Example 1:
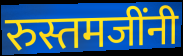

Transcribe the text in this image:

रुस्तमजींनी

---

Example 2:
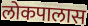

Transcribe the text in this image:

लोकपालास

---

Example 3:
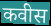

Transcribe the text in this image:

कवीस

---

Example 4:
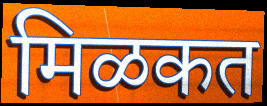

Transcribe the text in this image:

मिळकत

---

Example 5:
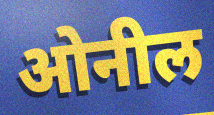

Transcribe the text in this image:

ओनील